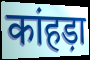
कांहड़ा